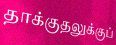
தாக்குதலுக்குப்